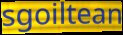
sgoiltean